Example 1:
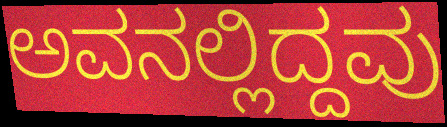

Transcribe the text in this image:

ಅವನಲ್ಲಿದ್ದವು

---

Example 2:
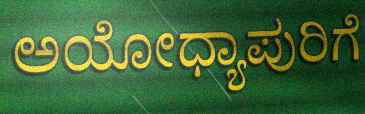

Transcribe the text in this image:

ಅಯೋಧ್ಯಾಪುರಿಗೆ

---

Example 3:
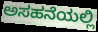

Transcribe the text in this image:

ಅಸಹನೆಯಲ್ಲಿ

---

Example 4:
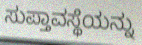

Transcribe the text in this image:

ಸುಪ್ತಾವಸ್ಥೆಯನ್ನು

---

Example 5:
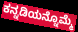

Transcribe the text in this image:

ಕನ್ನಡಿಯನ್ನೊಮ್ಮೆ